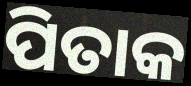
ପିତାକ